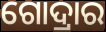
ଗୋଦ୍ରାର